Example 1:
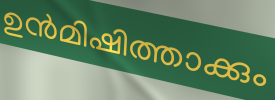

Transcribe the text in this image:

ഉൻമിഷിത്താക്കും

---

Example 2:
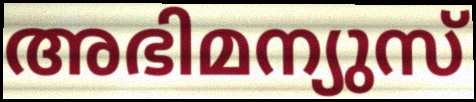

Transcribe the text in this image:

അഭിമന്യുസ്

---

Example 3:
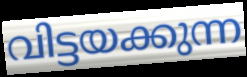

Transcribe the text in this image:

വിട്ടയക്കുന്ന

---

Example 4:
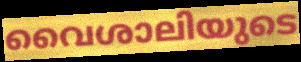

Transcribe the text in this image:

വൈശാലിയുടെ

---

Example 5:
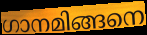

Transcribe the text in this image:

ഗാനമിങ്ങനെ